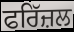
ਫਰਿੱਜ਼ਲ